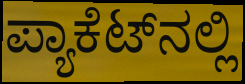
ಪ್ಯಾಕೆಟ್‍ನಲ್ಲಿ